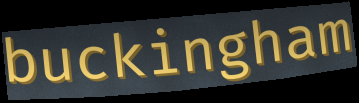
buckingham